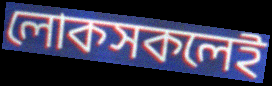
লোকসকলেই